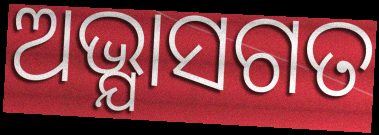
ଅଭ୍ଯାସଗତ